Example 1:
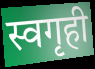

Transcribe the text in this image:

स्वगृही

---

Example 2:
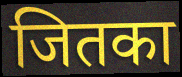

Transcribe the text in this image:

जितका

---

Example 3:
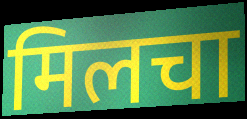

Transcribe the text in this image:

मिलचा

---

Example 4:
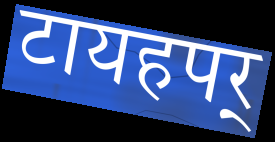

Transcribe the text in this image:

टायहपर्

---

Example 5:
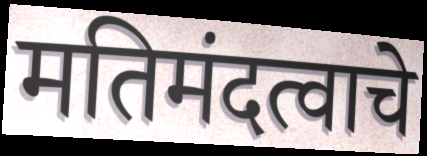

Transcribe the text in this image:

मतिमंदत्वाचे